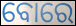
ବୋରେ